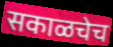
सकाळचेच